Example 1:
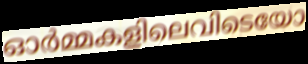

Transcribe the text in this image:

ഓർമ്മകളിലെവിടെയോ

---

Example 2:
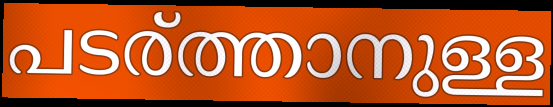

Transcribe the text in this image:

പടര്ത്താനുള്ള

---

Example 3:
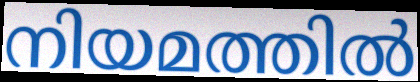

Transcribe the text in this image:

നിയമത്തിൽ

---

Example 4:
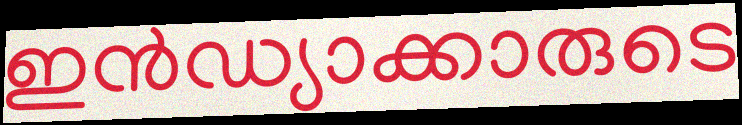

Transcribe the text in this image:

ഇൻഡ്യാക്കാരുടെ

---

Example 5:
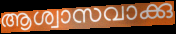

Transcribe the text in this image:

ആശ്വാസവാക്കു